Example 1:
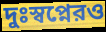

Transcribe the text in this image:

দুঃস্বপ্নেরও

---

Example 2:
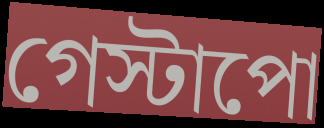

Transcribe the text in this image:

গেস্টাপো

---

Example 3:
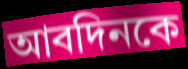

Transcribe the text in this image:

আবদিনকে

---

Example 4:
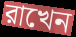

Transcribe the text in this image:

রাখেন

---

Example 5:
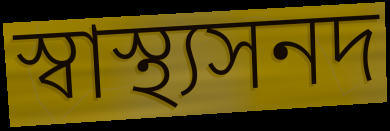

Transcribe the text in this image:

স্বাস্থ্যসনদ